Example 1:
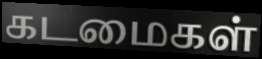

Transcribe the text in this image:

கடமைகள்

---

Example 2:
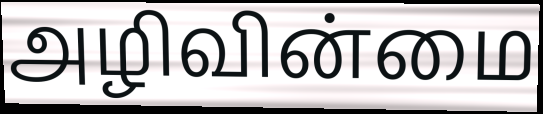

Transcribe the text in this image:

அழிவின்மை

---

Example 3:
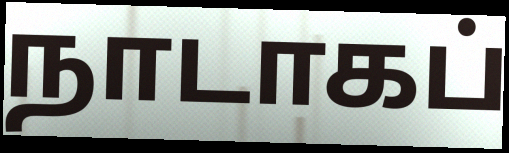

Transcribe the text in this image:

நாடாகப்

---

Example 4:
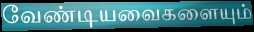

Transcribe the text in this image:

வேண்டியவைகளையும்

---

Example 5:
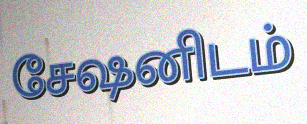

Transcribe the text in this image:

சேஷனிடம்